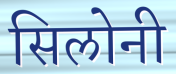
सिलोनी